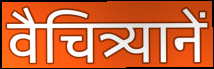
वैचित्र्यानें